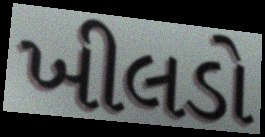
ખીલડો